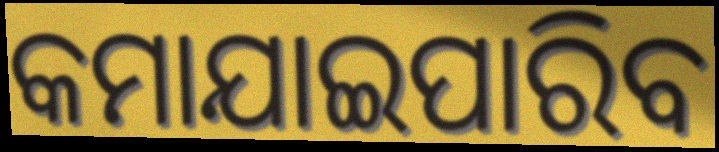
କମାଯାଇପାରିବ